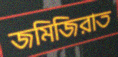
জমিজিরাত